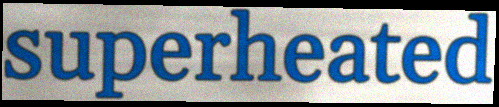
superheated